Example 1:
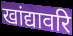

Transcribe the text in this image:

खांद्यावरि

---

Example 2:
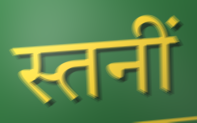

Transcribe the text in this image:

स्तनीं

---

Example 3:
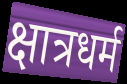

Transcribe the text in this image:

क्षात्रधर्म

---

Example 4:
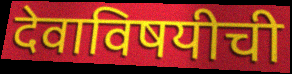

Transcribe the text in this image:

देवाविषयीची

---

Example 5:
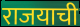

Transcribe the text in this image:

राजयाची